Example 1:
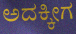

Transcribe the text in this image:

ಅದಕ್ಕೀಗ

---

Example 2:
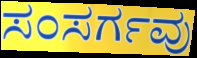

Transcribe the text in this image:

ಸಂಸರ್ಗವು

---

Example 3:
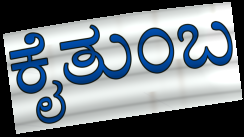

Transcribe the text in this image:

ಕೈತುಂಬ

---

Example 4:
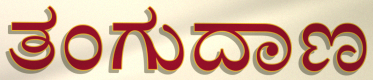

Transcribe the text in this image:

ತಂಗುದಾಣ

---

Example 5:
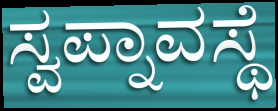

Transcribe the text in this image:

ಸ್ವಪ್ನಾವಸ್ಥೆ